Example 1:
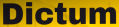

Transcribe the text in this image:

Dictum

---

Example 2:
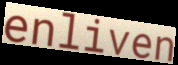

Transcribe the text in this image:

enliven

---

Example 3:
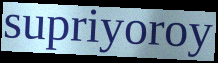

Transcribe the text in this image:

supriyoroy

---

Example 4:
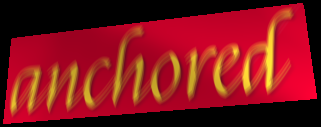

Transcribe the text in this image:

anchored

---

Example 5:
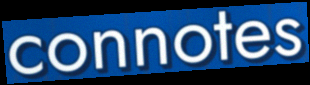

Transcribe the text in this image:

connotes